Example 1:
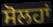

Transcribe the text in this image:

ਸੋਲਹਾਂ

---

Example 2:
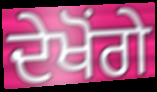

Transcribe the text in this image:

ਦੇਖੋਂਗੇ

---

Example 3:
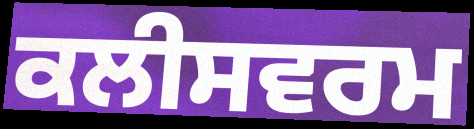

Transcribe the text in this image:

ਕਲੀਸਵਰਮ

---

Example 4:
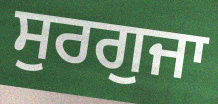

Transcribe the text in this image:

ਸੁਰਗੁਜਾ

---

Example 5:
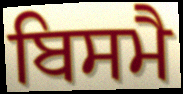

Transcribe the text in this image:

ਬਿਸਮੈ